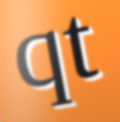
qt